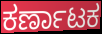
ಕರ್ಣಾಟಕ